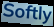
Softly